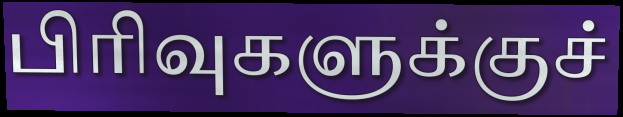
பிரிவுகளுக்குச்